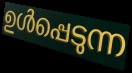
ഉൾപ്പെടുന്ന